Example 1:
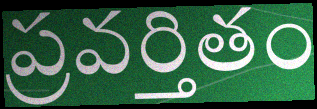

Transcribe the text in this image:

ప్రవర్తితం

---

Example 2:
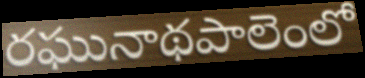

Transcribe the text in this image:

రఘునాథపాలెంలో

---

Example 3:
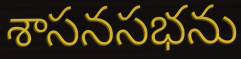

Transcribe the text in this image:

శాసనసభను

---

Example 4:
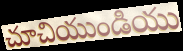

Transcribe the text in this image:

చూచియుండియు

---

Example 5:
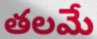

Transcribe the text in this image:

తలమే